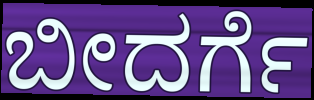
ಬೀದರ್ಗೆ